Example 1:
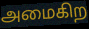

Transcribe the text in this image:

அமைகிற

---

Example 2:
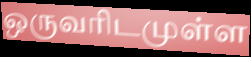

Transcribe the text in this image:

ஒருவரிடமுள்ள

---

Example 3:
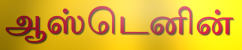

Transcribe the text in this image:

ஆஸ்டெனின்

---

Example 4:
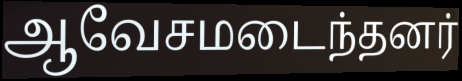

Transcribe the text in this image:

ஆவேசமடைந்தனர்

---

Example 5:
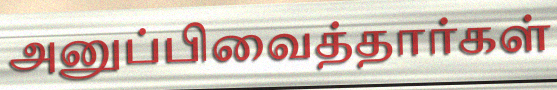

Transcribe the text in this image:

அனுப்பிவைத்தார்கள்